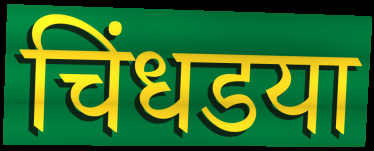
चिंधडया